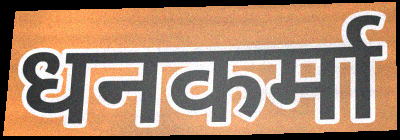
धनकर्मा